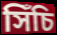
সিঁচি